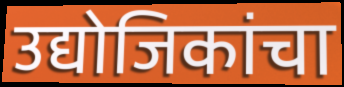
उद्योजिकांचा